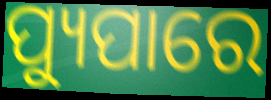
ପ୍ୟୁପାରେ